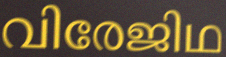
വിരേജിഥ